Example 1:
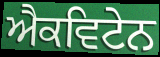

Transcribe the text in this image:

ਐਕਵਿਟੇਨ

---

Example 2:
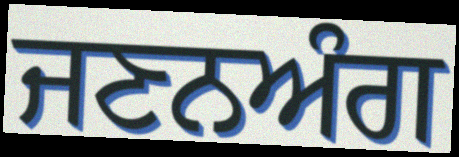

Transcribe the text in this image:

ਜਣਨਅੰਗ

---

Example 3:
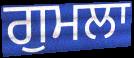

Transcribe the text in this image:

ਗੁਮਲਾ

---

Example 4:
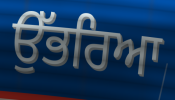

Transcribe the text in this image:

ਉੱਭਰਿਆ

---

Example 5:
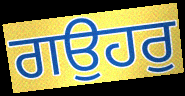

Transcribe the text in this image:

ਗਉਹਰੁ